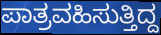
ಪಾತ್ರವಹಿಸುತ್ತಿದ್ದ